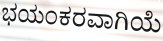
ಭಯಂಕರವಾಗಿಯೆ